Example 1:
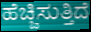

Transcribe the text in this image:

ಹೆಚ್ಚಿಸುತ್ತಿದೆ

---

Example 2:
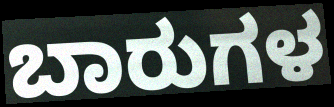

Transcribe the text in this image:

ಬಾರುಗಳ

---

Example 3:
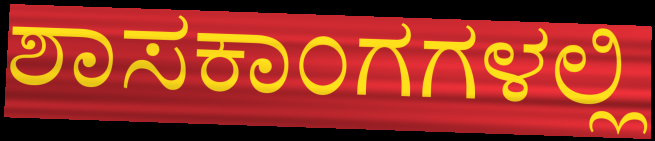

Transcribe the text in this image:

ಶಾಸಕಾಂಗಗಳಲ್ಲಿ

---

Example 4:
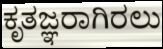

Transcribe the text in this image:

ಕೃತಜ್ಞರಾಗಿರಲು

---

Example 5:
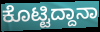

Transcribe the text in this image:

ಕೊಟ್ಟಿದ್ದಾನಾ